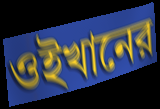
ওইখানের